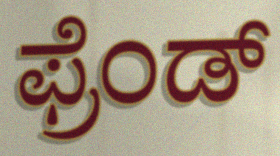
ಫ್ರೆಂಡ್